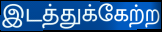
இடத்துக்கேற்ற